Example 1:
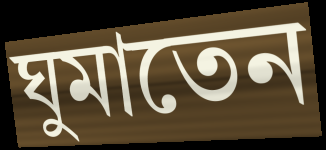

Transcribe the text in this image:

ঘুমাতেন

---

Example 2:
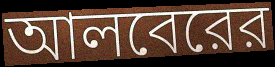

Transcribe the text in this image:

আলবেরের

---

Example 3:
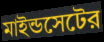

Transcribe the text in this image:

মাইন্ডসেটের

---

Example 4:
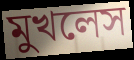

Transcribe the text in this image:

মুখলেস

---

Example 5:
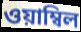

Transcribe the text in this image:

ওয়াম্বিল